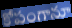
కోపంగానూ